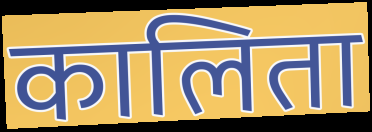
कालिता